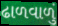
ઢાળવાળું